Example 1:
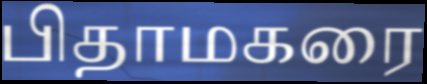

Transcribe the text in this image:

பிதாமகரை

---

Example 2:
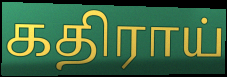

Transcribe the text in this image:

கதிராய்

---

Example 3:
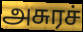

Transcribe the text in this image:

அசுரச்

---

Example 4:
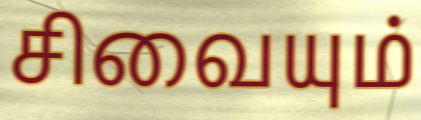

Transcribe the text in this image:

சிவையும்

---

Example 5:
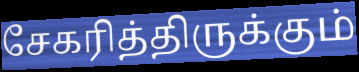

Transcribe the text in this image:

சேகரித்திருக்கும்